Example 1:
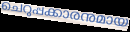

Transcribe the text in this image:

ചെറുപ്പക്കാരനുമായ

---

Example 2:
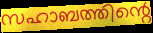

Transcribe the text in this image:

സഹാബത്തിന്റെ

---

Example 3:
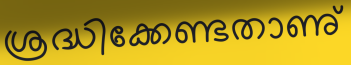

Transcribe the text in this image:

ശ്രദ്ധിക്കേണ്ടതാണു്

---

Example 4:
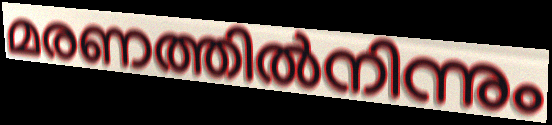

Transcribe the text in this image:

മരണത്തിൽനിന്നും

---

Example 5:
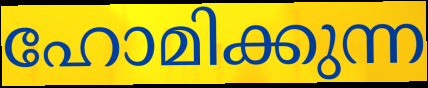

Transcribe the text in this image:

ഹോമിക്കുന്ന